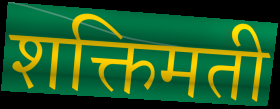
शक्तिमती